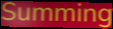
Summing